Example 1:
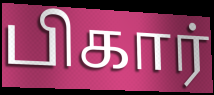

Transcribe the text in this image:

பிகார்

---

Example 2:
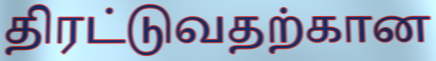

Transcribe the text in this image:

திரட்டுவதற்கான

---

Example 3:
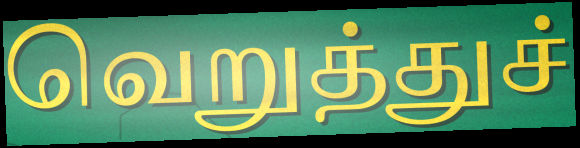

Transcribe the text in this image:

வெறுத்துச்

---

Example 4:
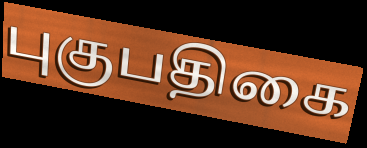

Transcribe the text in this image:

புகுபதிகை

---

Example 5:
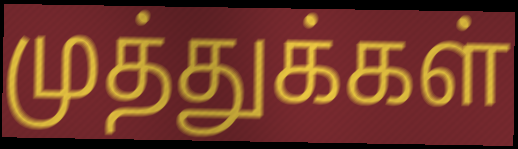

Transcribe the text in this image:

முத்துக்கள்